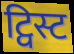
ट्विस्ट